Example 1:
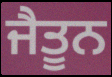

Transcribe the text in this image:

ਜੈਤੂਨ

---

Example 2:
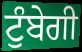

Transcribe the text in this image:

ਟੁੰਬੇਗੀ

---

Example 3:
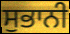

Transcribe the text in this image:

ਸੁਭਾਨੀ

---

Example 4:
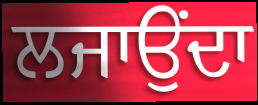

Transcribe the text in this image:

ਲਜਾਉਂਦਾ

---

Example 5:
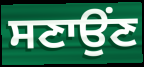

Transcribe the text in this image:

ਸਣਾਉਂਣ